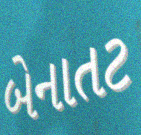
બેનાતટ